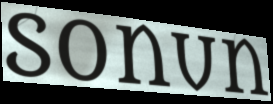
sonun